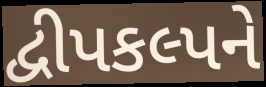
દ્વીપકલ્પને